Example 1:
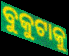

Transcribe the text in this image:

ବୁକୁଟାକୁ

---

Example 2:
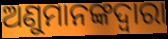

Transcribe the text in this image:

ଅଣୁମାନଙ୍କଦ୍ଵାରା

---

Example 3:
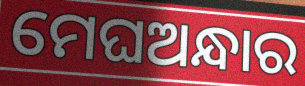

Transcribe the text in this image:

ମେଘଅନ୍ଧାର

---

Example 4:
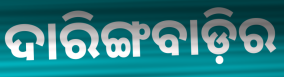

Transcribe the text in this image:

ଦାରିଙ୍ଗବାଡ଼ିର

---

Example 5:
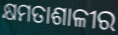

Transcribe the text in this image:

କ୍ଷମତାଶାଳୀର